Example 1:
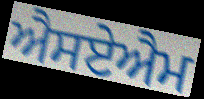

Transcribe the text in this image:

ਐਸਏਐਮ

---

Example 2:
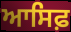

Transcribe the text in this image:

ਆਸਿਫ਼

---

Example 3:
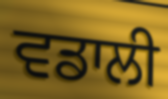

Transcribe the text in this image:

ਵਡਾਲੀ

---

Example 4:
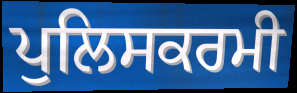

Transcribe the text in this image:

ਪੁਲਿਸਕਰਮੀ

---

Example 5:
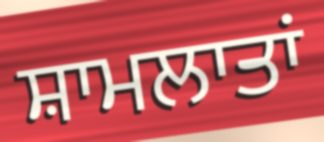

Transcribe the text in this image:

ਸ਼ਾਮਲਾਤਾਂ